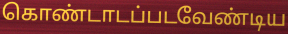
கொண்டாடப்படவேண்டிய